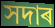
সদাৰ